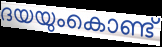
ദയയുംകൊണ്ട്